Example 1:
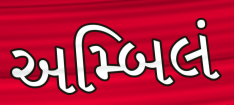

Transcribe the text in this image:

અમ્બિલં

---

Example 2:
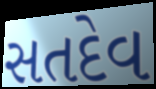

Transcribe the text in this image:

સતદેવ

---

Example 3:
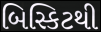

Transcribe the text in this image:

બિસ્કિટથી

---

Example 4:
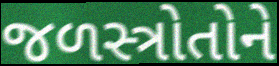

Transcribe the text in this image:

જળસ્ત્રોતોને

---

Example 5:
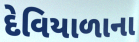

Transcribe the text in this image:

દેવિયાળાના